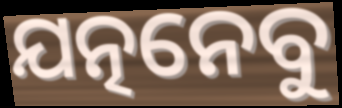
ଯତ୍ନନେବୁ